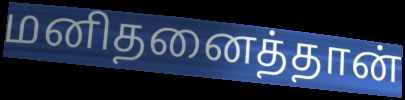
மனிதனைத்தான்